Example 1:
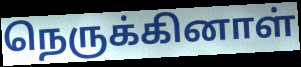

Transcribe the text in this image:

நெருக்கினாள்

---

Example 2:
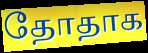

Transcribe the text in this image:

தோதாக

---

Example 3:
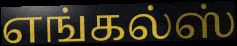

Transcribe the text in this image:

எங்கல்ஸ்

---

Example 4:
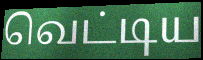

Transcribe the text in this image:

வெட்டிய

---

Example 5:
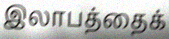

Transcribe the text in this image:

இலாபத்தைக்